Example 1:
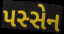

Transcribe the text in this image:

પસ્સેન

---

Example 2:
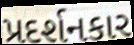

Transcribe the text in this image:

પ્રદર્શનકાર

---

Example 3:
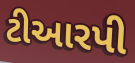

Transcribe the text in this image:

ટીઆરપી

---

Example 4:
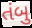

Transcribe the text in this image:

તંબુ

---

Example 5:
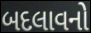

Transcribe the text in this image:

બદલાવનો